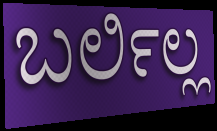
ಬರ್ಲಿಲ್ಲ